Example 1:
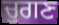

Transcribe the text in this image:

ਚੁਗਣ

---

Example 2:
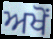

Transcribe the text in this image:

ਅਖੋਂ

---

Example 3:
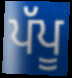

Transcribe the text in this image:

ਪੱਪੂ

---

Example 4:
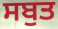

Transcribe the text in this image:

ਸਬੁਤ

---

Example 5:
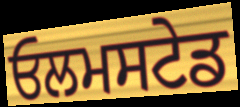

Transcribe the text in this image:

ਓਲਮਸਟੇਡ